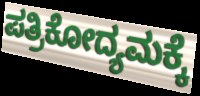
ಪತ್ರಿಕೋದ್ಯಮಕ್ಕೆ